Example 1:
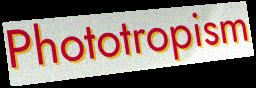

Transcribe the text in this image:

Phototropism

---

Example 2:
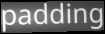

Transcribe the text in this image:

padding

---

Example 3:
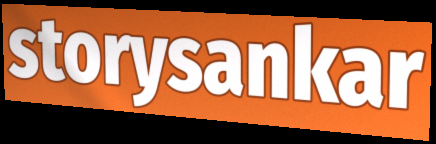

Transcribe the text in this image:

storysankar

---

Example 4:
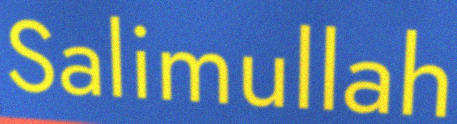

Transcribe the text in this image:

Salimullah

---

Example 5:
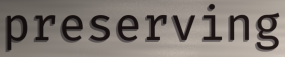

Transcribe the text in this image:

preserving